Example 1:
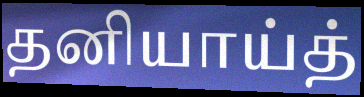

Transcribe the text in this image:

தனியாய்த்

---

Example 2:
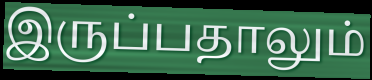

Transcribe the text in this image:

இருப்பதாலும்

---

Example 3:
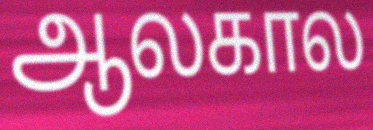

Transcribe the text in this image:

ஆலகால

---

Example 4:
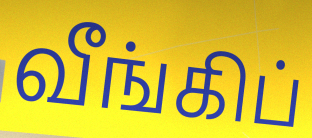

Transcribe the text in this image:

வீங்கிப்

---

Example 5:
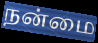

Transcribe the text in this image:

நன்மை